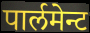
पार्लमेन्ट